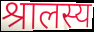
श्रालस्य